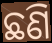
ଛଣି